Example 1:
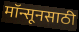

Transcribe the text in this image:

मॉन्सूनसाठी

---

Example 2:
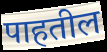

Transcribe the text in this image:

पाहतील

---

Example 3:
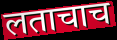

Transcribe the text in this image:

लताचाच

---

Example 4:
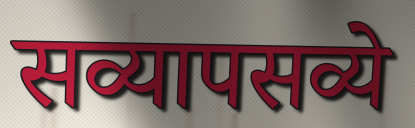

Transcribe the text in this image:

सव्यापसव्ये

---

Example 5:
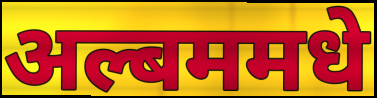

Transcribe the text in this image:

अल्बममधे